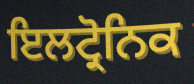
ਇਲਟ੍ਰੋਨਿਕ